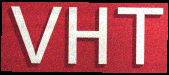
VHT